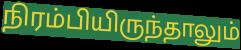
நிரம்பியிருந்தாலும்